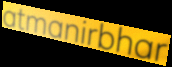
atmanirbhar